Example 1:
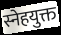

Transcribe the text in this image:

स्नेहयुक्त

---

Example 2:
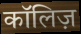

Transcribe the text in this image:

कॉलिज़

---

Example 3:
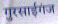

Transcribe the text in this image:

गुरसाईगंज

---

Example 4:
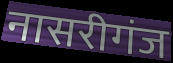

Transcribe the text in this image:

नासरीगंज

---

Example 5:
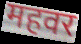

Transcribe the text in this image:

महवर